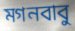
মগনবাবু